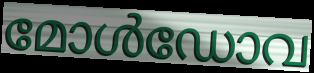
മോൾഡോവ